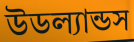
উডল্যান্ডস